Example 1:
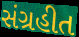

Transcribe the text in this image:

સંગ્રહીત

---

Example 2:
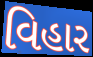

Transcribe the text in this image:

વિહાર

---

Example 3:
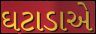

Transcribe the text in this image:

ઘટાડાએ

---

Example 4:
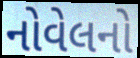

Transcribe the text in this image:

નોવેલનો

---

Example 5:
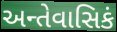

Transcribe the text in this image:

અન્તેવાસિકં